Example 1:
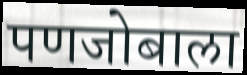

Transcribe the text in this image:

पणजोबाला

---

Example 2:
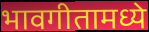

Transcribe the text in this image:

भावगीतामध्ये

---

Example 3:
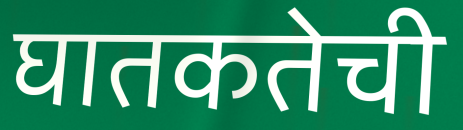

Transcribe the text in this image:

घातकतेची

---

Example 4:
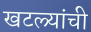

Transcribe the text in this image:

खटल्यांची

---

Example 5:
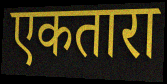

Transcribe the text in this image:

एकतारा